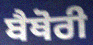
ਬੈਥੋਰੀ